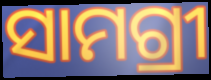
ସାମଗ୍ରୀ